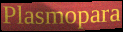
Plasmopara